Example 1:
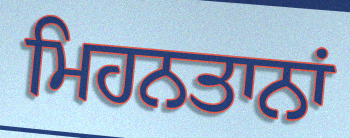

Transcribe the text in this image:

ਮਿਹਨਤਾਨਾਂ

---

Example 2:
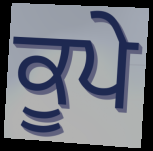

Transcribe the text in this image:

ਕੂਪੇ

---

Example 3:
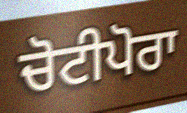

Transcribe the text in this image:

ਚੋਟੀਪੋਰਾ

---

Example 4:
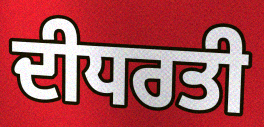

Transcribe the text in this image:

ਦੀਧਰਤੀ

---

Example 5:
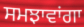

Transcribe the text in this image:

ਸਮਝਾਵਾਂਗਾ